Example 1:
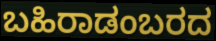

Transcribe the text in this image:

ಬಹಿರಾಡಂಬರದ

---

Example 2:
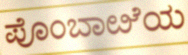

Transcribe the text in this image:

ಪೊಂಬಾೞೆಯ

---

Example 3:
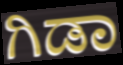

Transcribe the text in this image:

ಗಿಡಾ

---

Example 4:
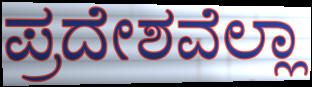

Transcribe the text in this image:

ಪ್ರದೇಶವೆಲ್ಲಾ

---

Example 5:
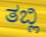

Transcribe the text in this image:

ತಬ್ಲಿ